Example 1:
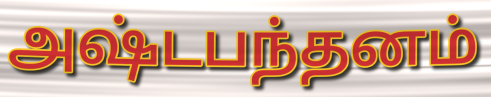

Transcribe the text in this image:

அஷ்டபந்தனம்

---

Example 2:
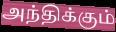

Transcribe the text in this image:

அந்திக்கும்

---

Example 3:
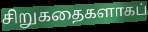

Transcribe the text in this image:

சிறுகதைகளாகப்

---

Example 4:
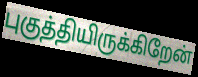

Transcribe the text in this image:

புகுத்தியிருக்கிறேன்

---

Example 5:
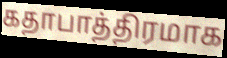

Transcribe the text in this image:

கதாபாத்திரமாக